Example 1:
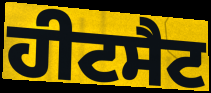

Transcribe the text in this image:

ਹੀਟਸੈਟ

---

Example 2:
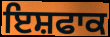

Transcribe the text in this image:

ਇਸ਼ਫਾਕ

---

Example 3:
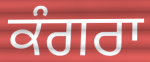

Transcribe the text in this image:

ਕੰਗਰਾ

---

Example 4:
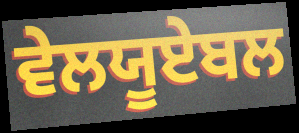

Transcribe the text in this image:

ਵੇਲਯੂਏਬਲ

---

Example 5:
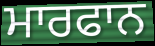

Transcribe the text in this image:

ਮਾਰਫਾਨ